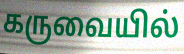
கருவையில்